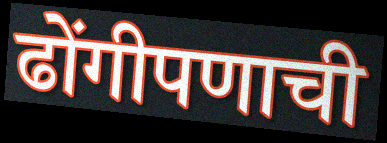
ढोंगीपणाची